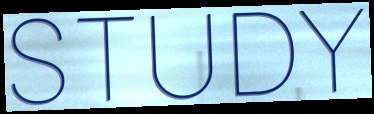
STUDY